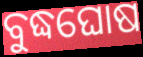
ବୁଦ୍ଧଘୋଷ